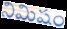
నిమిషం